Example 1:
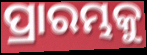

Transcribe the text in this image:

ପ୍ରାରମ୍ଭକୁ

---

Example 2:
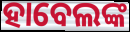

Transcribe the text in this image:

ହାବେଲଙ୍କ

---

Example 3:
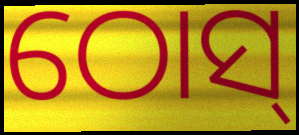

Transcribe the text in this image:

ଠୋସ୍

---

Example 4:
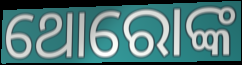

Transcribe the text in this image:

ଥୋରୋଙ୍କ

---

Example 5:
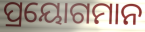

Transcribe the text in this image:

ପ୍ରୟୋଗମାନ